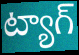
ట్యాగ్